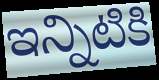
ఇన్నిటికి